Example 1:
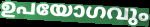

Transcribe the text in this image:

ഉപയോഗവും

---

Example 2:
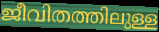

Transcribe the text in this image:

ജീവിതത്തിലുള്ള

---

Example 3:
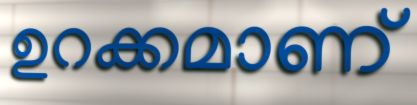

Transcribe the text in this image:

ഉറക്കമാണ്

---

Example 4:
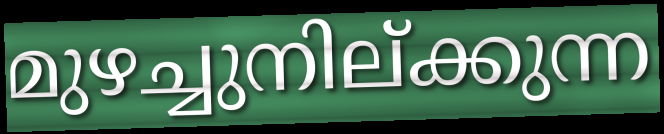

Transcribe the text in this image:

മുഴച്ചുനില്ക്കുന്ന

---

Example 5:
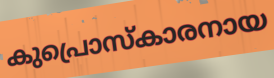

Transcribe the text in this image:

കുപ്രൊസ്കാരനായ